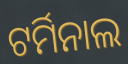
ଟର୍ମିନାଲ